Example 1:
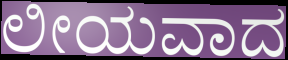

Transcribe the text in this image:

ಲೀಯವಾದ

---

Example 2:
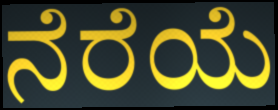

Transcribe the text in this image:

ನೆರೆಯೆ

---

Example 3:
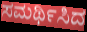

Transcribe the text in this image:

ಸಮರ್ಥಿಸಿದ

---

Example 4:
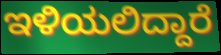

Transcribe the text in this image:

ಇಳಿಯಲಿದ್ದಾರೆ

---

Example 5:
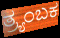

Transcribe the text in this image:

ತ್ರ್ಯಂಬಕ